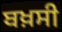
ਬਖ਼ਸੀ